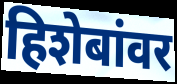
हिशेबांवर